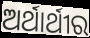
ଅର୍ଥାର୍ଥୀର